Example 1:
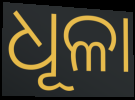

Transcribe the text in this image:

ଧୂଳା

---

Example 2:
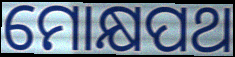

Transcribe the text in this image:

ମୋକ୍ଷପଥ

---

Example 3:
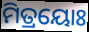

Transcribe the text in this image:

ମିତ୍ରୟୋଃ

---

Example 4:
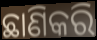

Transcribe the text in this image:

ଛାଣିକରି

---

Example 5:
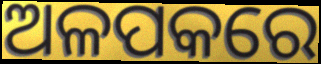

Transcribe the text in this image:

ଅଳପକରେ